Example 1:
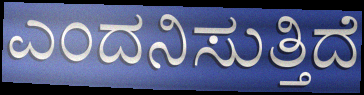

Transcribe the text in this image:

ಎಂದನಿಸುತ್ತಿದೆ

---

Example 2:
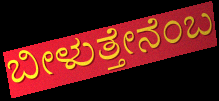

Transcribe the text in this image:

ಬೀಳುತ್ತೇನೆಂಬ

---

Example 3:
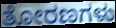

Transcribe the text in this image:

ತೋರಣಗಳು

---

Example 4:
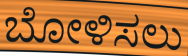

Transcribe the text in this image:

ಬೋಳಿಸಲು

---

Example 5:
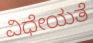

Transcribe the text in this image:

ವಿಧೇಯತೆ